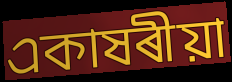
একাষৰীয়া